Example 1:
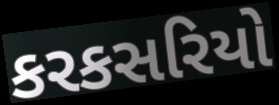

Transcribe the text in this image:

કરકસરિયો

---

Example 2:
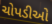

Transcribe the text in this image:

ચોપડીઓ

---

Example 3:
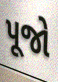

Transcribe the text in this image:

પૂજો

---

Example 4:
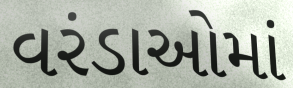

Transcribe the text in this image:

વરંડાઓમાં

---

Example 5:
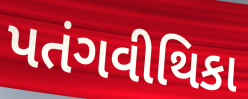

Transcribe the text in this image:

પતંગવીથિકા